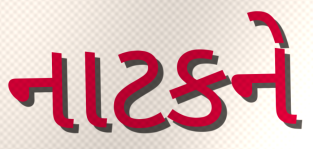
નાટકને